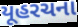
યૂહરચના